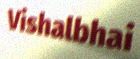
Vishalbhai